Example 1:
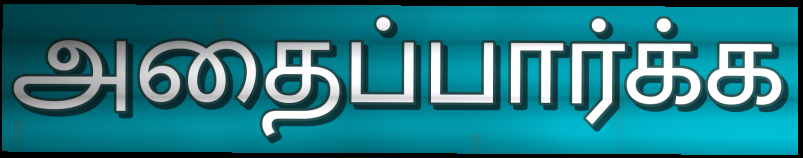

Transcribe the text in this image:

அதைப்பார்க்க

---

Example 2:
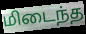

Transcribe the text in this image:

மிடைந்த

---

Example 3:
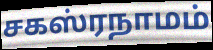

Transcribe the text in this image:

சகஸ்ரநாமம்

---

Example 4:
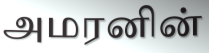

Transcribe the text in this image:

அமரனின்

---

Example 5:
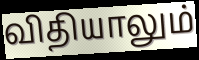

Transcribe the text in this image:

விதியாலும்